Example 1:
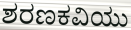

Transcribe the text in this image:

ಶರಣಕವಿಯು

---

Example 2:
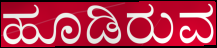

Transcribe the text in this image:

ಹೂಡಿರುವ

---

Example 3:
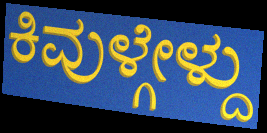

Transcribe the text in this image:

ಕಿವುಳ್ಗೇಳ್ದು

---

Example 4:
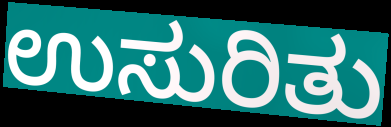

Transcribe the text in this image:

ಉಸುರಿತು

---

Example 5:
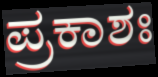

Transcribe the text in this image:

ಪ್ರಕಾಶಃ